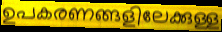
ഉപകരണങ്ങളിലേക്കുള്ള